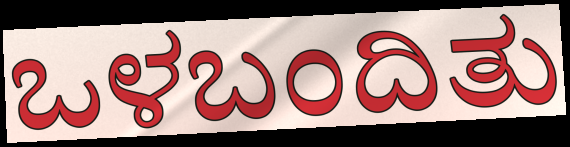
ಒಳಬಂದಿತು